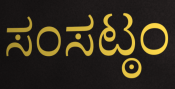
ಸಂಸಟ್ಠಂ